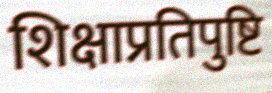
शिक्षाप्रतिपुष्टि